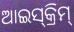
ଆଇସ୍‍କ୍ରିମ୍